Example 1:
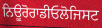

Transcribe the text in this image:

ਨਿਊਰੋਰਾਡੀਓਲੋਜਿਸਟ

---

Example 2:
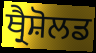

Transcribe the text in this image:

ਥ੍ਰੈਸ਼ੋਲਡ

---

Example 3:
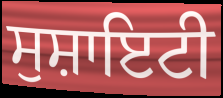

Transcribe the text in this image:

ਸੁਸ਼ਾਇਟੀ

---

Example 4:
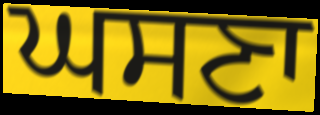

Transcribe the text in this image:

ਘਸਣਾ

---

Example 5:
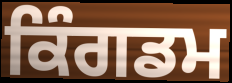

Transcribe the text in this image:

ਕਿੰਗਡਮ